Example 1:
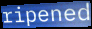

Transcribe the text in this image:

ripened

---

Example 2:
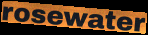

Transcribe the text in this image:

rosewater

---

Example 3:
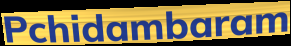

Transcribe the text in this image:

Pchidambaram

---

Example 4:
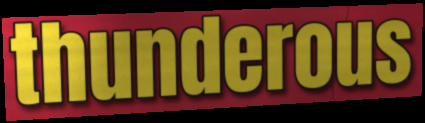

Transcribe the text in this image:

thunderous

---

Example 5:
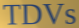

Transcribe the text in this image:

TDVs